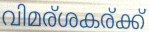
വിമര്ശകര്ക്ക്